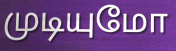
முடியுமோ